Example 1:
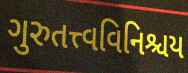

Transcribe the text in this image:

ગુરુતત્ત્વવિનિશ્ચય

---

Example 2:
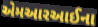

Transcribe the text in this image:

એમઆરઆઈના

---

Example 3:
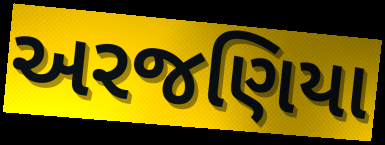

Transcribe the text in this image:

અરજણિયા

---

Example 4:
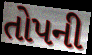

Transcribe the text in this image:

તોપની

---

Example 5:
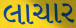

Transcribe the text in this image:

લાચાર